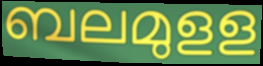
ബലമുളള